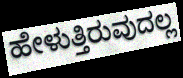
ಹೇಳುತ್ತಿರುವುದಲ್ಲ